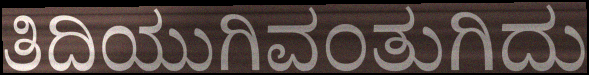
ತಿದಿಯುಗಿವಂತುಗಿದು